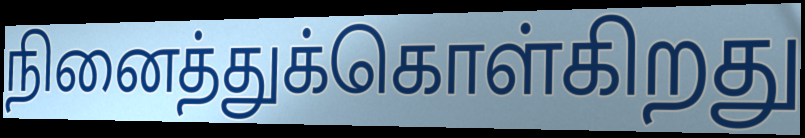
நினைத்துக்கொள்கிறது